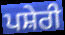
ਪਸ਼ੇਰੀ